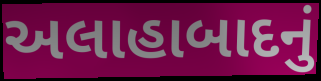
અલાહાબાદનું